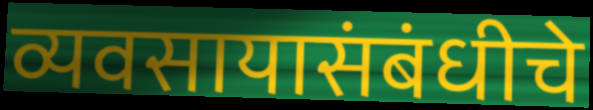
व्यवसायासंबंधीचे